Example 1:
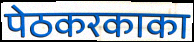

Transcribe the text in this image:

पेठकरकाका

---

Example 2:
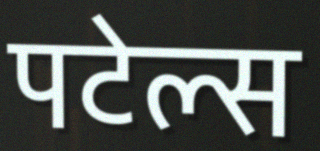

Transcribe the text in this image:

पटेल्स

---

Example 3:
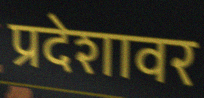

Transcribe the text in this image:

प्रदेशावर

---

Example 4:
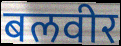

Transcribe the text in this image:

बलवीर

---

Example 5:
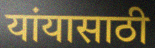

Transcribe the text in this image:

यांयासाठी